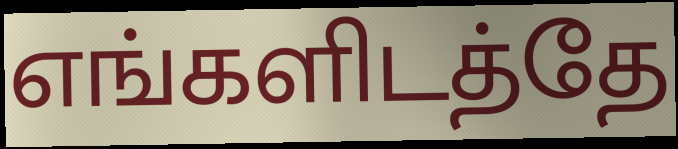
எங்களிடத்தே